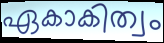
ഏകാകിത്വം